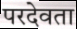
परदेवता